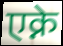
एक्ने